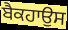
ਬੈਕਹਾਉਸ